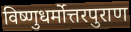
विष्णुधर्मोत्तरपुराण